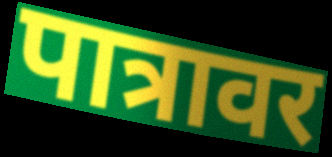
पात्रावर